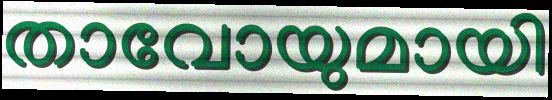
താവോയുമായി